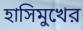
হাসিমুখের